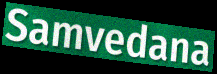
Samvedana